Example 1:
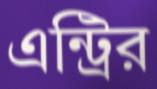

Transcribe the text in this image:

এন্ট্রির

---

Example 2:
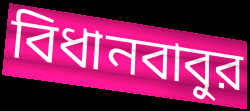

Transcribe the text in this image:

বিধানবাবুর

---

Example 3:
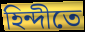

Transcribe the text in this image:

হিন্দীতে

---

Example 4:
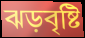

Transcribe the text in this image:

ঝড়বৃষ্টি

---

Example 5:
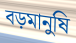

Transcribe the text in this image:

বড়মানুষি